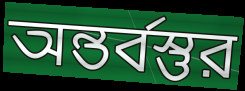
অন্তর্বস্তুর